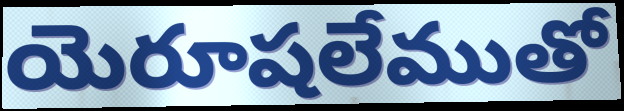
యెరూషలేముతో